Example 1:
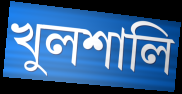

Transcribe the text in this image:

খুলশালি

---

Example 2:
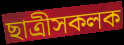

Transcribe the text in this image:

ছাত্ৰীসকলক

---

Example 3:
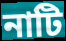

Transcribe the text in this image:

নাটি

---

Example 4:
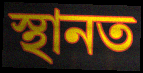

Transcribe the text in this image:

স্থানত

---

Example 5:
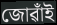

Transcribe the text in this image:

জোৱাঁই